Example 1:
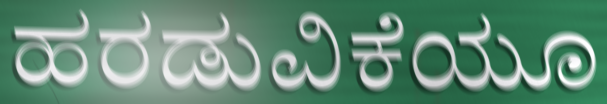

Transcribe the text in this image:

ಹರಡುವಿಕೆಯೂ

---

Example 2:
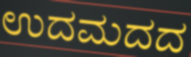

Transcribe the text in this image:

ಉದಮದದ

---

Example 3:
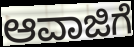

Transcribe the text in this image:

ಆವಾಜಿಗೆ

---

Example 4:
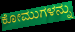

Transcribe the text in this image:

ಕೋಮುಗಳನ್ನು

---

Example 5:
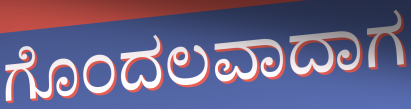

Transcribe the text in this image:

ಗೊಂದಲವಾದಾಗ